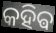
କହିଵ